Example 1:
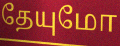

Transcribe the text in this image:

தேயுமோ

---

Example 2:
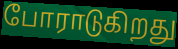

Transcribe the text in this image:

போராடுகிறது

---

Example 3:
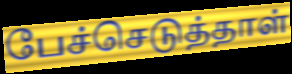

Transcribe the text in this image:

பேச்செடுத்தாள்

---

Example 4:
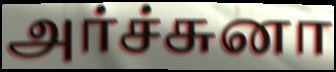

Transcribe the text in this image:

அர்ச்சுனா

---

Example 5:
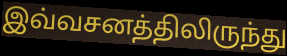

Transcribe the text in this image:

இவ்வசனத்திலிருந்து